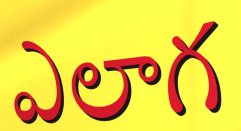
ఎలాగ